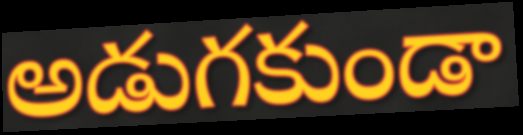
అడుగకుండా